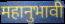
महानुभावी